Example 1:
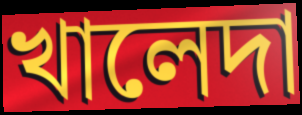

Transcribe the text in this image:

খালেদা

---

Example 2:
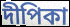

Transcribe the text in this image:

দীপিকা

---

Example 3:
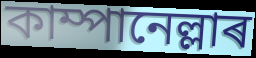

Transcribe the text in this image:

কাম্পানেল্লাৰ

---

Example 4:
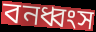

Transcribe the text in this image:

বনধ্বংস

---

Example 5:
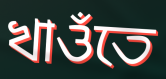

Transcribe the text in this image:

খাওঁতে